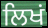
ਲਿਖਂ